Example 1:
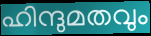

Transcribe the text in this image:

ഹിന്ദുമതവും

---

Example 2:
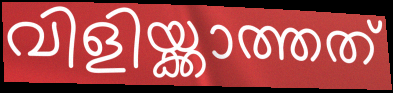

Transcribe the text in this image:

വിളിയ്ക്കാത്തത്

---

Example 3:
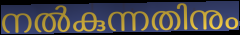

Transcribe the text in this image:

നൽകുന്നതിനും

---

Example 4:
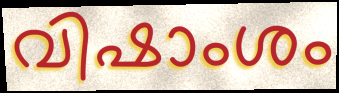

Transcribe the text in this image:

വിഷാംശം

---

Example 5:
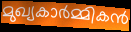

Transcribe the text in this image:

മുഖ്യകാർമ്മികൻ